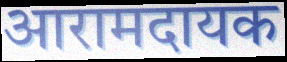
आरामदायक